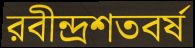
রবীন্দ্রশতবর্ষ